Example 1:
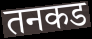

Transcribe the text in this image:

तनकड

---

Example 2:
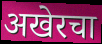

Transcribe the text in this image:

अखेरचा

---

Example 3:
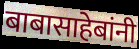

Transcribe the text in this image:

बाबासाहेबांनी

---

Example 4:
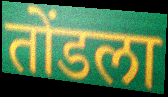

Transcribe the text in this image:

तोंडला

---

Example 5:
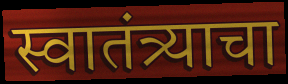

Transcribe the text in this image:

स्वातंत्र्याचा